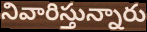
నివారిస్తున్నారు